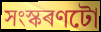
সংস্কৰণটো